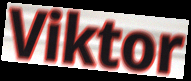
Viktor